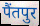
पैंतपुर